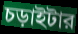
চড়াইটার